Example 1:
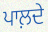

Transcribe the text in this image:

ਪਾਲ਼ਦੇ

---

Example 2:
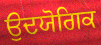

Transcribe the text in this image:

ਉਦਯੋਗਿਕ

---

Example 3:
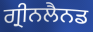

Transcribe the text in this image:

ਗ੍ਰੀਨਲੈਨਡ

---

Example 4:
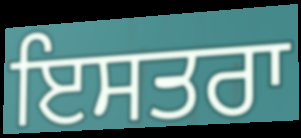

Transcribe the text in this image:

ਇਸਤਰਾ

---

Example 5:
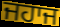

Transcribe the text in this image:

ਜਹਾਜ